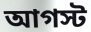
আগস্ট